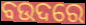
ବଉଦରେ